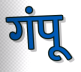
गंपू